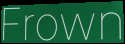
Frown